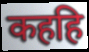
कहहि